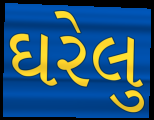
ઘરેલુ